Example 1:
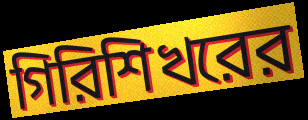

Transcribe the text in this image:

গিরিশিখরের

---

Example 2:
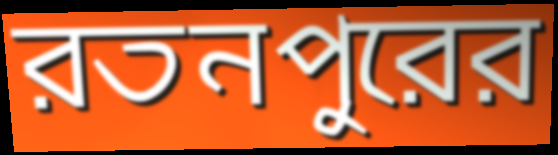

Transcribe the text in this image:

রতনপুরের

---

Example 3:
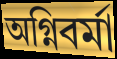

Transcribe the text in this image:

অগ্নিবর্মা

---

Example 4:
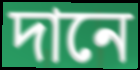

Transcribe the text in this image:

দানে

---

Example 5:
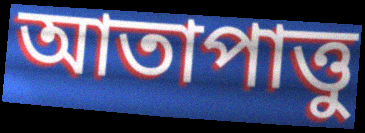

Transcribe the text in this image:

আতাপাত্তু